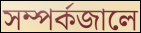
সম্পর্কজালে